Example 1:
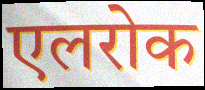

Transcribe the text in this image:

एलरोक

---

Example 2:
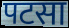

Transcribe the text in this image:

पटसा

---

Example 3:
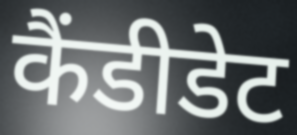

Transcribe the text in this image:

कैंडीडेट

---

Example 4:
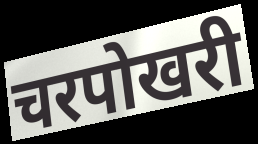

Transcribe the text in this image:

चरपोखरी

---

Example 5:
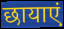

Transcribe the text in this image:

छायाएं